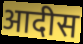
आदीस